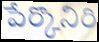
పేర్కొనిరి